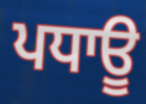
ਪਧਾਊ